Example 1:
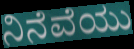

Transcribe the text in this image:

ನಿನೆವೆಯು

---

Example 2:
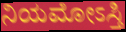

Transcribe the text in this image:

ನಿಯಮೋಽಸ್ತಿ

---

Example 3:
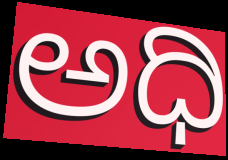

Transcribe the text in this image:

ಅಧಿ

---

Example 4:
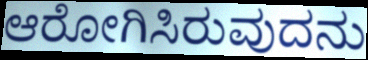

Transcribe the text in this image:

ಆರೋಗಿಸಿರುವುದನು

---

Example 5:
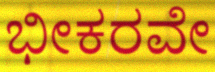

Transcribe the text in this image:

ಭೀಕರವೇ